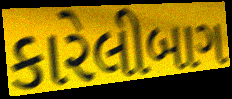
કારેલીબાગ